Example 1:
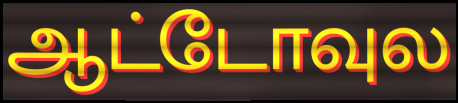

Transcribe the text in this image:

ஆட்டோவுல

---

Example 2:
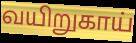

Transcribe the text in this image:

வயிறுகாய்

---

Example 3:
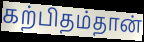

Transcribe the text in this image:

கற்பிதம்தான்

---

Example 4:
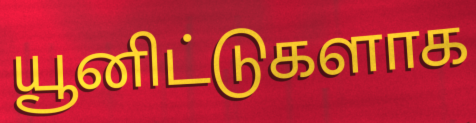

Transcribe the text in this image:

யூனிட்டுகளாக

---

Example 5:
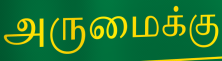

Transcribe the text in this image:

அருமைக்கு